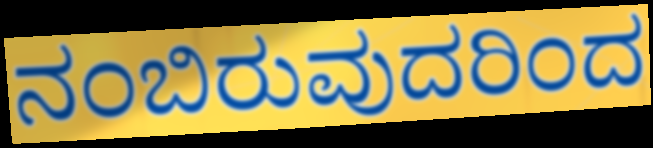
ನಂಬಿರುವುದರಿಂದ